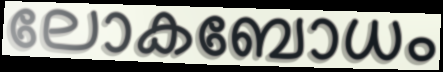
ലോകബോധം